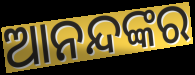
ଆନନ୍ଦଙ୍କର